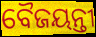
ବୈଜୟନ୍ତୀ